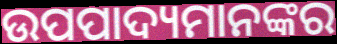
ଉପପାଦ୍ୟମାନଙ୍କର